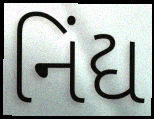
નિંદ્ય